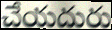
చేయదురు